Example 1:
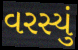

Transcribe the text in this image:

વરસ્યું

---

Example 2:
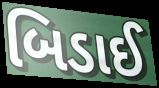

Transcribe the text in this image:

બિડાઈ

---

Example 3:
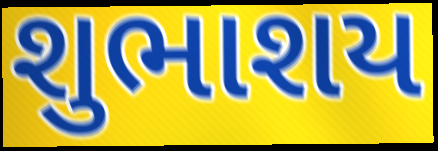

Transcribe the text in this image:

શુભાશય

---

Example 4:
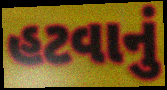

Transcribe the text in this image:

હટવાનું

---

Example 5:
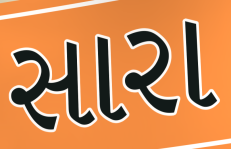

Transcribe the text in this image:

સારા